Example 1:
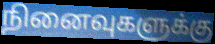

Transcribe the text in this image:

நினைவுகளுக்கு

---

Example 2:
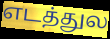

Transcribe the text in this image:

எடத்துல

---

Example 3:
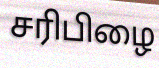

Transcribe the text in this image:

சரிபிழை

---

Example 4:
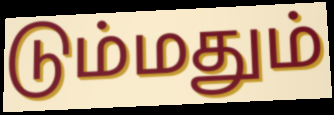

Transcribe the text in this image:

டும்மதும்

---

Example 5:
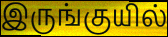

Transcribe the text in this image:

இருங்குயில்